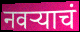
नवर्‍याचं